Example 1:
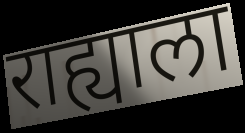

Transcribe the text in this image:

राह्याला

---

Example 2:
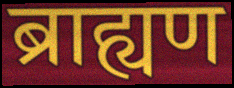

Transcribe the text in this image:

ब्राह्यण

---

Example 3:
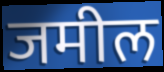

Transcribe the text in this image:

जमील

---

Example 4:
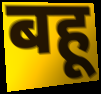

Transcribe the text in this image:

बहू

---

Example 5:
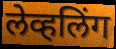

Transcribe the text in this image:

लेव्हलिंग